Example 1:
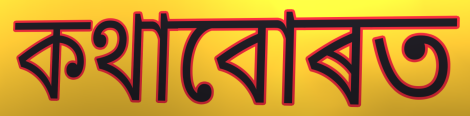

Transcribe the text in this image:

কথাবোৰত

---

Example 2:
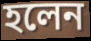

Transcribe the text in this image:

হলেন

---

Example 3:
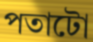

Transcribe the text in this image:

পতাটো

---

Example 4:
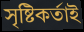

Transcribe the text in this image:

সৃষ্টিকৰ্তাই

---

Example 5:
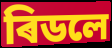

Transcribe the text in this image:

ৰিডলে